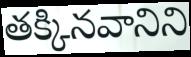
తక్కినవానిని